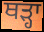
ਥੜ੍ਹਾ